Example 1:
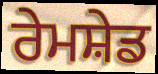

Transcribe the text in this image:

ਰੇਮਸ਼ੇਡ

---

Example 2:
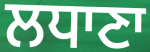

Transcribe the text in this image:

ਲਧਾਣਾ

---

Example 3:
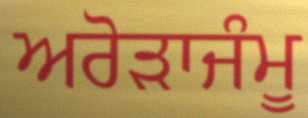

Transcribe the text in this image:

ਅਰੋੜਾਜੰਮੂ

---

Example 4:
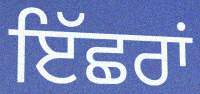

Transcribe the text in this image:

ਇੱਛਰਾਂ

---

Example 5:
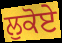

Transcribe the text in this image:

ਲੁਕੋਏ